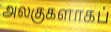
அலகுகளாகப்